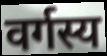
वर्गस्य